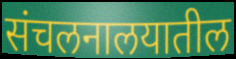
संचलनालयातील